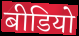
बीडियो